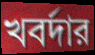
খবর্দার